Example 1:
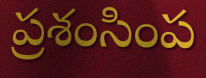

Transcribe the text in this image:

ప్రశంసింప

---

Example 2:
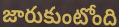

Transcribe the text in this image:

జారుకుంటోంది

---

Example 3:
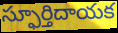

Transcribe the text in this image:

స్ఫూర్తిదాయక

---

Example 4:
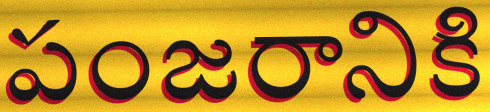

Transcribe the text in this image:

పంజరానికి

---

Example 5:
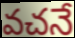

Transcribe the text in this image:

వచనే